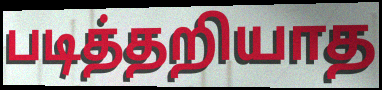
படித்தறியாத